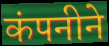
कंपनीने